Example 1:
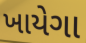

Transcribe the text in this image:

ખાયેગા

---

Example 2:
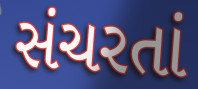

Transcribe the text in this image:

સંચરતાં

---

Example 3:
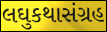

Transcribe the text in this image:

લઘુકથાસંગ્રહ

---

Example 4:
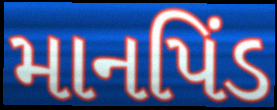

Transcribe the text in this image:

માનપિંડ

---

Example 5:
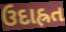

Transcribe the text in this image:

ઉદાહ્રત